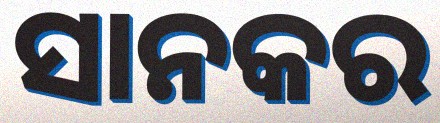
ସାନକର